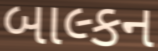
બાલ્કન